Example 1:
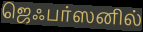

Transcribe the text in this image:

ஜெஃபர்ஸனில்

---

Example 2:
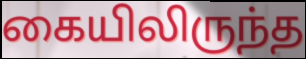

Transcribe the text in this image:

கையிலிருந்த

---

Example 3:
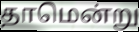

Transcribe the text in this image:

தாமென்று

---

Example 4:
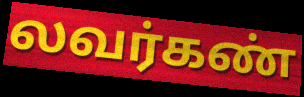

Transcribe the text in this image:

லவர்கண்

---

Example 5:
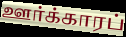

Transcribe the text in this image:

ஊர்க்காரப்